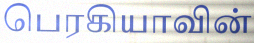
பெரகியாவின்